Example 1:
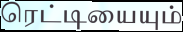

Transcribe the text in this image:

ரெட்டியையும்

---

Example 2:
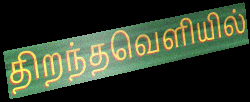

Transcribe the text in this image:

திறந்தவெளியில்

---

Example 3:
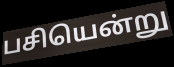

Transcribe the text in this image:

பசியென்று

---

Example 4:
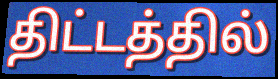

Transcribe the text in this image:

திட்டத்தில்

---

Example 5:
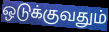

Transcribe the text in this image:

ஒடுக்குவதும்